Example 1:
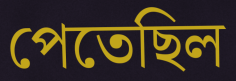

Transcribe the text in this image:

পেতেছিল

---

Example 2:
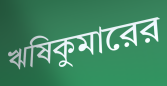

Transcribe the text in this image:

ঋষিকুমারের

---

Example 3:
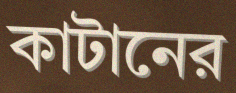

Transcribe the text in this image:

কাটানের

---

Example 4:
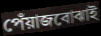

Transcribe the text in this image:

পেঁয়াজবোঝাই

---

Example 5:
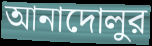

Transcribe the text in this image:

আনাদোলুর